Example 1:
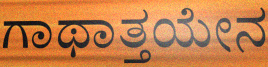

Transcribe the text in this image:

ಗಾಥಾತ್ತಯೇನ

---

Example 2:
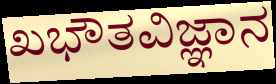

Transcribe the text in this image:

ಖಭೌತವಿಜ್ಞಾನ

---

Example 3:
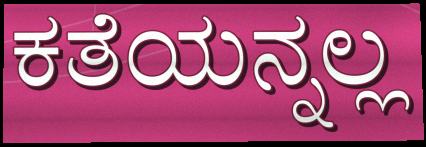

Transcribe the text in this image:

ಕತೆಯನ್ನಲ್ಲ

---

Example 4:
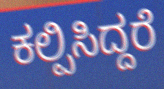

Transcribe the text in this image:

ಕಲ್ಪಿಸಿದ್ದರೆ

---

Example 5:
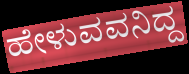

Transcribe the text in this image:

ಹೇಳುವವನಿದ್ದ